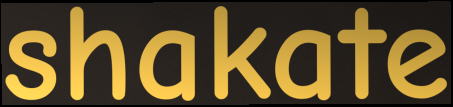
shakate